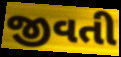
જીવતી